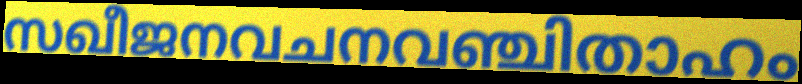
സഖീജനവചനവഞ്ചിതാഹം